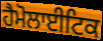
ਹੈਮੋਲਾਈਟਿਕ